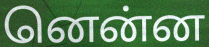
னென்ன